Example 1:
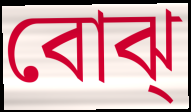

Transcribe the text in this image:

বোঝ্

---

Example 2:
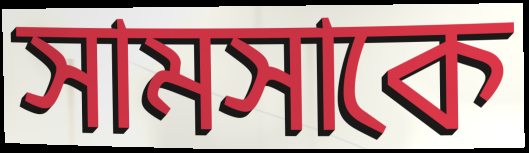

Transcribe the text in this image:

সামসাকে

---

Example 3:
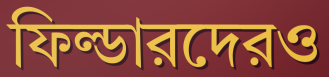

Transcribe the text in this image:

ফিল্ডারদেরও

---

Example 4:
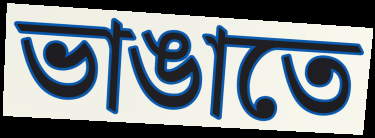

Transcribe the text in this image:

ভাঙাতে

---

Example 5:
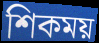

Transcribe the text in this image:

শিকময়